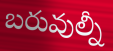
బరువుల్నీ